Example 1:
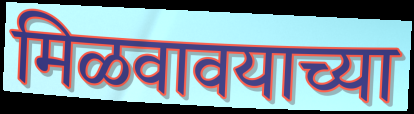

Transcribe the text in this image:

मिळवावयाच्या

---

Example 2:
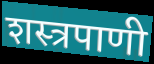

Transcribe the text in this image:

शस्त्रपाणी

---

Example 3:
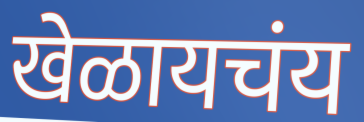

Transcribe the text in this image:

खेळायचंय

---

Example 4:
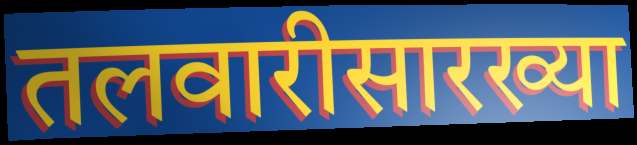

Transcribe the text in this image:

तलवारीसारख्या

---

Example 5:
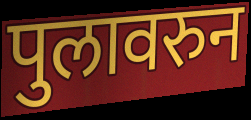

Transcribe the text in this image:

पुलावरुन